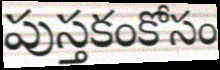
పుస్తకంకోసం